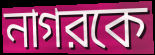
নাগরকে